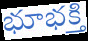
భూభక్తి